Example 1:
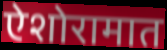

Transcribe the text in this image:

ऐशोरामात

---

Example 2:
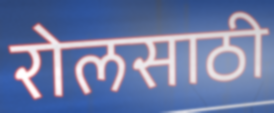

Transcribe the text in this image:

रोलसाठी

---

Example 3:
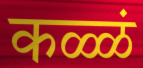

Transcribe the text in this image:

कळ्ळं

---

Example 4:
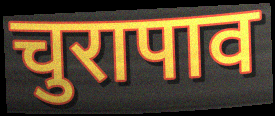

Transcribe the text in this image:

चुरापाव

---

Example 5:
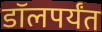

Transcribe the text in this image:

डॉलपर्यंत